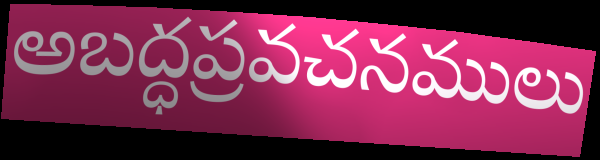
అబద్ధప్రవచనములు